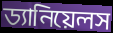
ড্যানিয়েলস